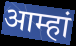
आम्हां